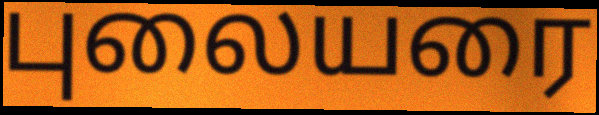
புலையரை